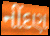
નીંદણ